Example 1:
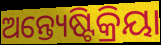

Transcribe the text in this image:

ଅନ୍ତ୍ୟେଷ୍ଟିକ୍ରିୟା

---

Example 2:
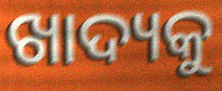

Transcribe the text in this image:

ଖାଦ୍ୟକୁ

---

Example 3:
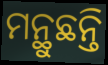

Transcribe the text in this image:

ମନ୍ଥୁଛନ୍ତି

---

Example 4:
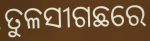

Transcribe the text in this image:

ତୁଳସୀଗଛରେ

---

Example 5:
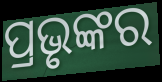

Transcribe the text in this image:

ପ୍ରଭୃଙ୍କର